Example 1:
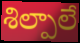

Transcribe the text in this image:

శిల్పాలే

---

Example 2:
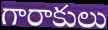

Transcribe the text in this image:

గారాకులు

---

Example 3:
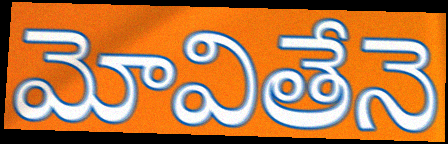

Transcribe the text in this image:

మోవితేనె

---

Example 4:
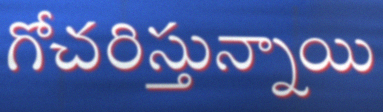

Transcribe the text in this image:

గోచరిస్తున్నాయి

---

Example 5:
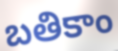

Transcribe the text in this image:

బతికాం